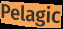
Pelagic